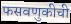
फसवणुकीची